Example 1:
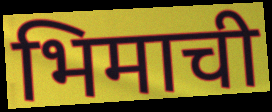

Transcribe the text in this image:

भिमाची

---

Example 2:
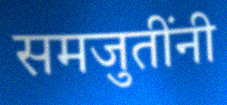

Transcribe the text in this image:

समजुतींनी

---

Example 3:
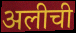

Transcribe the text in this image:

अलीची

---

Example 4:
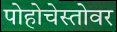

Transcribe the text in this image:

पोहोचेस्तोवर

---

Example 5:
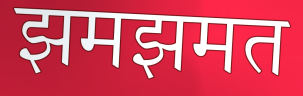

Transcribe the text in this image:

झमझमत